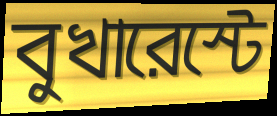
বুখারেস্টে